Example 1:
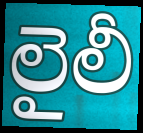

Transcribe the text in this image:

లైలీ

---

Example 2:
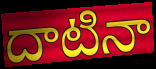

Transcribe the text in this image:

దాటినా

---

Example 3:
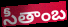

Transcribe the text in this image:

సీతాంబ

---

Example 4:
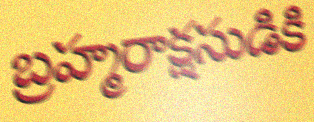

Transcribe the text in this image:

బ్రహ్మరాక్షసుడికి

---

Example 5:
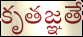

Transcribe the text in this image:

కృతజ్ఞతే